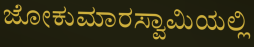
ಜೋಕುಮಾರಸ್ವಾಮಿಯಲ್ಲಿ